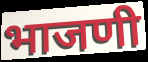
भाजणी